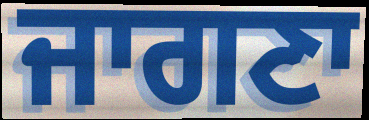
ਜਾਗਣਾ